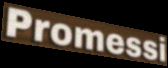
Promessi